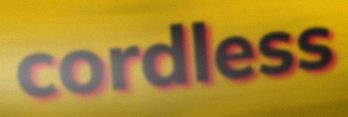
cordless